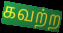
கவற்ற